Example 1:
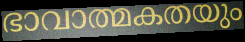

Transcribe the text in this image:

ഭാവാത്മകതയും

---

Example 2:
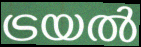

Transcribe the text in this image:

ട്രയൽ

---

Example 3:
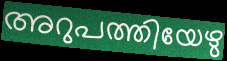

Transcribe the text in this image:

അറുപത്തിയേഴു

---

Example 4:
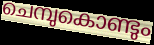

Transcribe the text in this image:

ചെമ്പുകൊണ്ടും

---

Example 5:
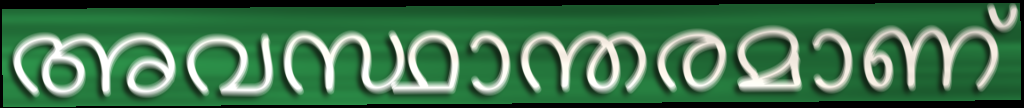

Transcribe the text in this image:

അവസ്ഥാന്തരമാണ്